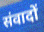
संवादों